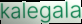
kalegala